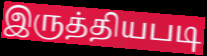
இருத்தியபடி